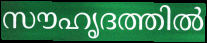
സൗഹൃദത്തിൽ